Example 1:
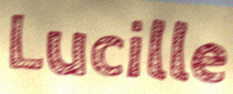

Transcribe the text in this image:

Lucille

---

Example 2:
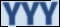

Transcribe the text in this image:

YYY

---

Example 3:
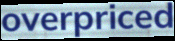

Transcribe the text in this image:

overpriced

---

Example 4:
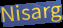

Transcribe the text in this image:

Nisarg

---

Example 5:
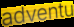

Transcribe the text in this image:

adventu